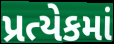
પ્રત્યેકમાં